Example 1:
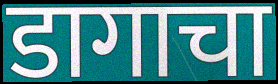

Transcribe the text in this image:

डागाचा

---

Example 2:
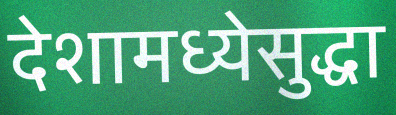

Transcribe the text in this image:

देशामध्येसुद्धा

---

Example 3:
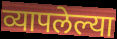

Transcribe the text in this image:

व्यापलेल्या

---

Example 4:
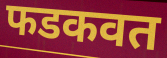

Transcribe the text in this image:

फडकवत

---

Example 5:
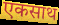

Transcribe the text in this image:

एकसाथ